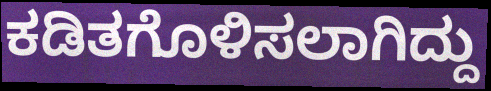
ಕಡಿತಗೊಳಿಸಲಾಗಿದ್ದು